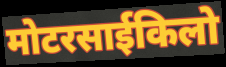
मोटरसाईकिलो